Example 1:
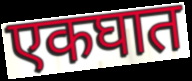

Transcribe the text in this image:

एकघात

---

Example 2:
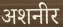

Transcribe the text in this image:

अशनीर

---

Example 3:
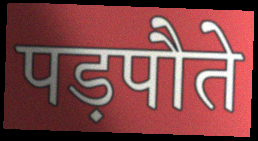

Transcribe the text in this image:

पड़पौते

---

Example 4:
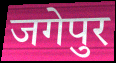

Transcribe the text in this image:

जगेपुर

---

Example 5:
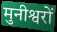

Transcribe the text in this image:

मुनीश्वरों